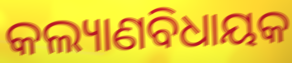
କଲ୍ୟାଣବିଧାୟକ